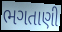
ભગતાણી